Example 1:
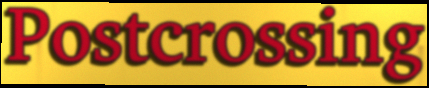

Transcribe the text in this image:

Postcrossing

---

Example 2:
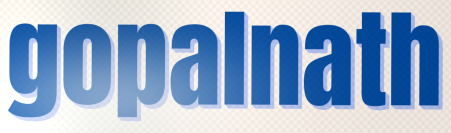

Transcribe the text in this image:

gopalnath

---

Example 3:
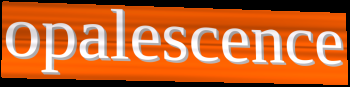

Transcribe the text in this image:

opalescence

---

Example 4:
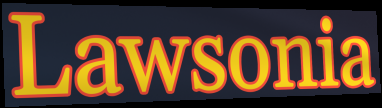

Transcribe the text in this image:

Lawsonia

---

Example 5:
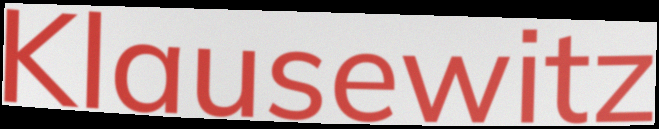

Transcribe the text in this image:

Klausewitz